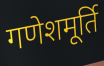
गणेशमूर्ति